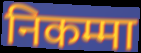
निकम्मा